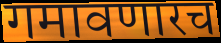
गमावणारच